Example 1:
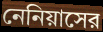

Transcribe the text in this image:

নেনিয়াসের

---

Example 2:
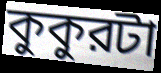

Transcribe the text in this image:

কুকুরটা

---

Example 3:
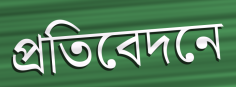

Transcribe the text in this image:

প্রতিবেদনে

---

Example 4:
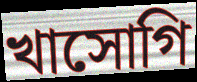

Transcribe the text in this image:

খাসোগি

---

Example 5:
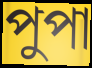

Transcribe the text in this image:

পুপা